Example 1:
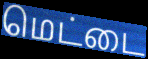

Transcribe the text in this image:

மெட்டை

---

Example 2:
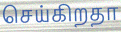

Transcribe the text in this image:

செய்கிறதா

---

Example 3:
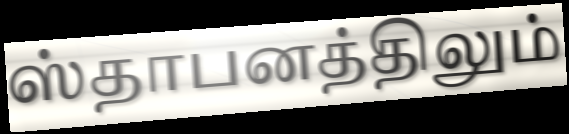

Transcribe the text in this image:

ஸ்தாபனத்திலும்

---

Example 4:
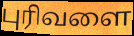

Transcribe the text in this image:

புரிவளை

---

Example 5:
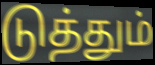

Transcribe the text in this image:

டுத்தும்